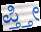
ಪ್ತ್ತೀ